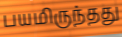
பயமிருந்தது